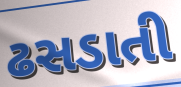
ઢસડાતી